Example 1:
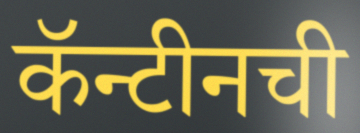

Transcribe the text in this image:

कॅन्टीनची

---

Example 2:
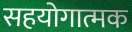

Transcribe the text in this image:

सहयोगात्मक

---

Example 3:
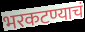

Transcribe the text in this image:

भरकटण्याचं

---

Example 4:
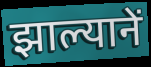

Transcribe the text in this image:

झाल्यानें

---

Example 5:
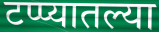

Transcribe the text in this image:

टप्प्यातल्या